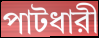
পাটধারী